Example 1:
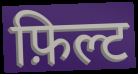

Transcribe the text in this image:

फ़िल्ट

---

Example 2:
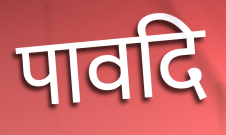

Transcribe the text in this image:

पावदि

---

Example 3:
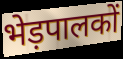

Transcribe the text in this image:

भेड़पालकों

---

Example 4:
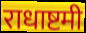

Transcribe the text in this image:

राधाष्टमी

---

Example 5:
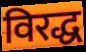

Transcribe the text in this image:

विरद्ध